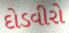
દોડવીરો